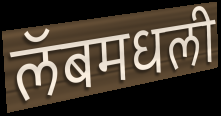
लॅबमधली